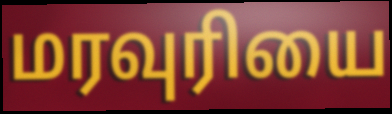
மரவுரியை